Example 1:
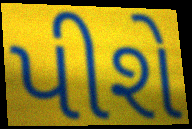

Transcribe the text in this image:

પીશે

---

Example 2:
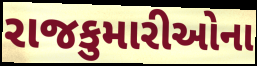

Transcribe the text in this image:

રાજકુમારીઓના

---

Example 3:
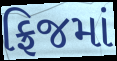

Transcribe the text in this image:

ફ્રિજમાં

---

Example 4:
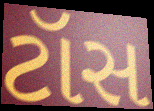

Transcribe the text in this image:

ટૉસ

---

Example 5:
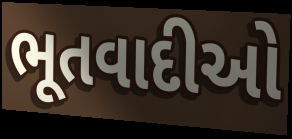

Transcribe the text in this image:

ભૂતવાદીઓ